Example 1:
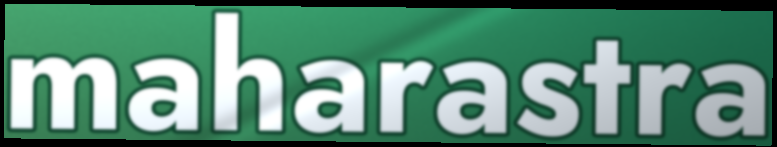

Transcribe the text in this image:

maharastra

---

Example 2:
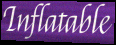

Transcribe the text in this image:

Inflatable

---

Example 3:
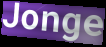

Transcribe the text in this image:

Jonge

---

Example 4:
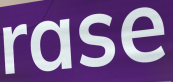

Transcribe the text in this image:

rase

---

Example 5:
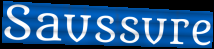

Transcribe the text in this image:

Saussure